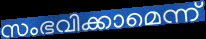
സംഭവിക്കാമെന്ന്